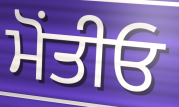
ਮੋਂਤੀਓ